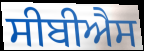
ਸੀਬੀਐਸ